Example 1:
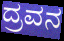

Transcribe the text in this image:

ದ್ರವನ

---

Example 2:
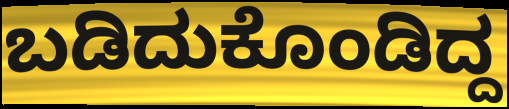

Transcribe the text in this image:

ಬಡಿದುಕೊಂಡಿದ್ದ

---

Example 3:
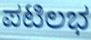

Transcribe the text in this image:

ಪಟಿಲಭ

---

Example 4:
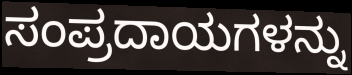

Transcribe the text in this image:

ಸಂಪ್ರದಾಯಗಳನ್ನು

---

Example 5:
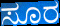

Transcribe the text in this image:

ಸೂರ